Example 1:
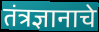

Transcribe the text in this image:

तंत्रज्ञानाचे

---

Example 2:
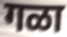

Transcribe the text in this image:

गळा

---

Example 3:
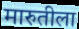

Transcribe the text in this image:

मारुतीला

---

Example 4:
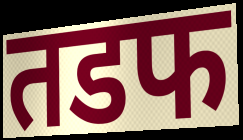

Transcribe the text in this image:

तडफ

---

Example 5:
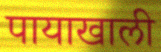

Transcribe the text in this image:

पायाखाली